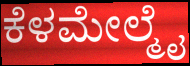
ಕೆಳಮೇಲ್ಮೈ